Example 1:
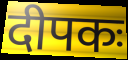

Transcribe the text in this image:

दीपकः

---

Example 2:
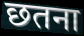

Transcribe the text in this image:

छतना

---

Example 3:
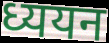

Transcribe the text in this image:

ध्ययन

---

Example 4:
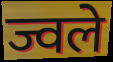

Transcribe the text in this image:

ज्वले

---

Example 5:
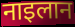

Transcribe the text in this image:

नाइलान